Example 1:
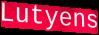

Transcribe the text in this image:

Lutyens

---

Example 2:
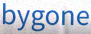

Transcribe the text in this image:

bygone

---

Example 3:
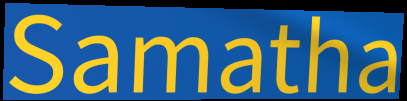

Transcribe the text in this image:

Samatha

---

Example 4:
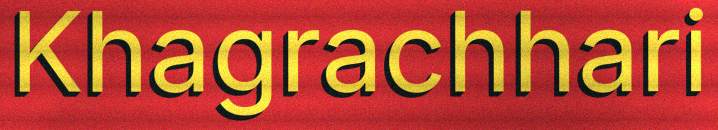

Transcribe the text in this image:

Khagrachhari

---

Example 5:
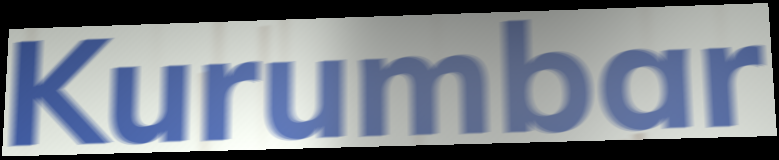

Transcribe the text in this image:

Kurumbar